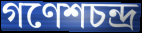
গণেশচন্দ্র